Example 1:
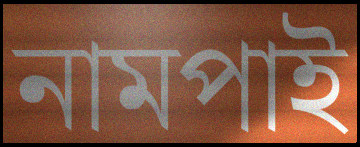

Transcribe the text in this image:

নামপাই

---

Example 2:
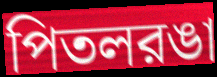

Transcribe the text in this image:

পিতলরঙা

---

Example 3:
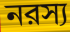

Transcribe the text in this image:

নরস্য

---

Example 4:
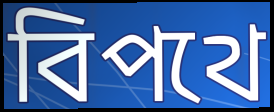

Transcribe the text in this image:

বিপথে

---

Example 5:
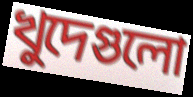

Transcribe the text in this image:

খুদেগুলো